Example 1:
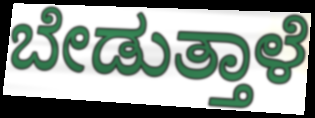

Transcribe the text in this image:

ಬೇಡುತ್ತಾಳೆ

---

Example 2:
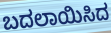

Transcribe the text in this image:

ಬದಲಾಯಿಸಿದ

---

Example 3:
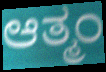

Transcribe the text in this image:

ಆತ್ಮಂ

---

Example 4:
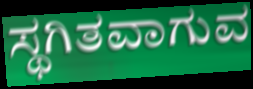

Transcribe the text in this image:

ಸ್ಥಗಿತವಾಗುವ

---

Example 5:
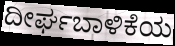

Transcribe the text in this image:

ದೀರ್ಘಬಾಳಿಕೆಯ